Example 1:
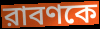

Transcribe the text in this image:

রাবণকে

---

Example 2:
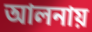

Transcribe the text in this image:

আলনায়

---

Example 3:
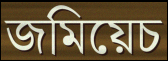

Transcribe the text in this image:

জমিয়েচ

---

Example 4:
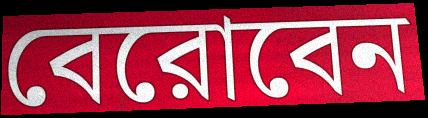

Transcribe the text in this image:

বেরোবেন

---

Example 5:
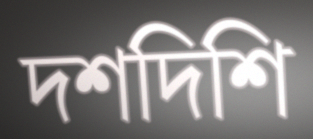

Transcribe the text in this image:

দশদিশি